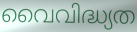
വൈവിദ്ധ്യത